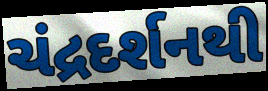
ચંદ્રદર્શનથી